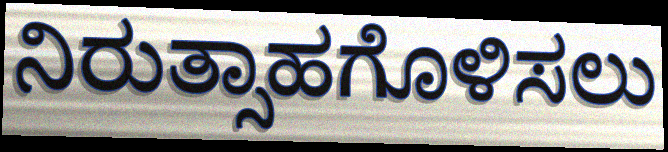
ನಿರುತ್ಸಾಹಗೊಳಿಸಲು